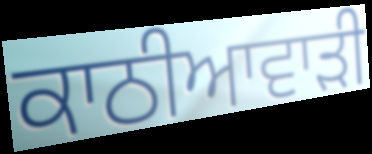
ਕਾਠੀਆਵਾੜੀ